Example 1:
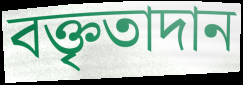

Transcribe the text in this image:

বক্তৃতাদান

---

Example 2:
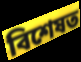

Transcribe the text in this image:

বিশেষত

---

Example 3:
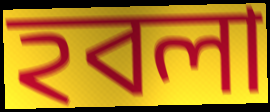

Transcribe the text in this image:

হবলা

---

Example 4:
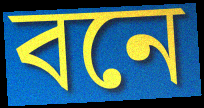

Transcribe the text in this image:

বনে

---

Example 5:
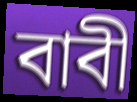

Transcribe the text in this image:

বাবী